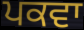
ਪਕਵਾ